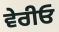
ਵੇਰੀਓ